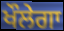
ਖੌਲੇਗਾ